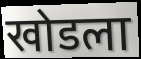
खोडला